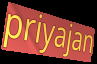
priyajan